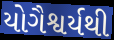
યોગૈશ્વર્યથી